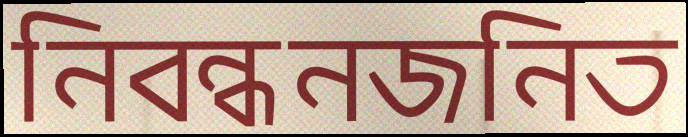
নিবন্ধনজনিত